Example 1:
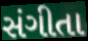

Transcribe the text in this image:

સંગીતા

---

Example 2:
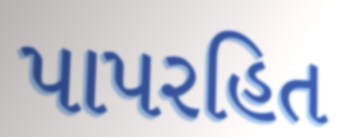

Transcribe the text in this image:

પાપરહિત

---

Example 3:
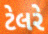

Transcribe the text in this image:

ટેલરે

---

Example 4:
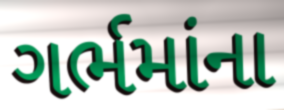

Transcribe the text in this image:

ગર્ભમાંના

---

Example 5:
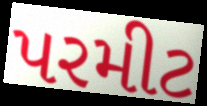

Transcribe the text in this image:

પરમીટ